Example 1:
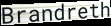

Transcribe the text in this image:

Brandreth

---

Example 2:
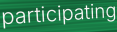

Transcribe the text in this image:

participating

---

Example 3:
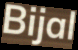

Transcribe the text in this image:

Bijal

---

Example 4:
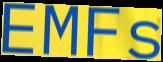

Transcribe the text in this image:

EMFs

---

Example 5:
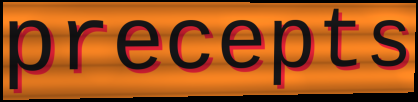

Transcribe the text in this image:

precepts